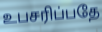
உபசரிப்பதே